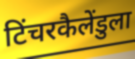
टिंचरकैलेंडुला